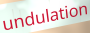
undulation